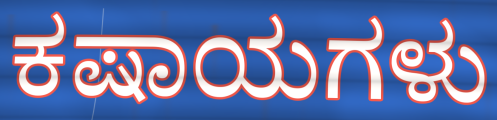
ಕಷಾಯಗಳು